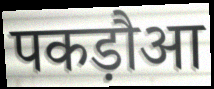
पकड़ौआ